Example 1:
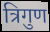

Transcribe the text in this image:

त्रिगुण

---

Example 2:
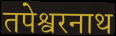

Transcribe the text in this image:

तपेश्वरनाथ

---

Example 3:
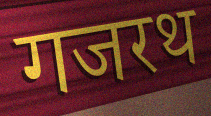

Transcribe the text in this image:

गजरथ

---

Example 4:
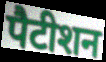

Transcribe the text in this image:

पैटीशन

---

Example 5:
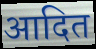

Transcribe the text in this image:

आदित